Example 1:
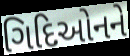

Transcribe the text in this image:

ગિદિઓનને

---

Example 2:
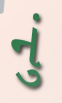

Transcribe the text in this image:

નું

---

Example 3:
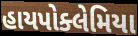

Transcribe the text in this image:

હાયપોક્લેમિયા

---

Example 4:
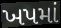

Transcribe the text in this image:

ખપમાં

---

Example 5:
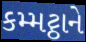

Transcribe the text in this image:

કમ્મટ્ઠાને